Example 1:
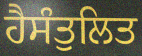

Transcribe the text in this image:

ਹੈਸੰਤੁਲਿਤ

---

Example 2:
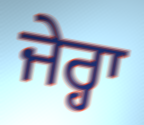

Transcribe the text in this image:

ਜੇਰ੍ਹਾ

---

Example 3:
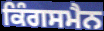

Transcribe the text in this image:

ਕਿੰਗਸਮੈਨ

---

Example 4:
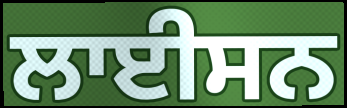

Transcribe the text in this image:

ਲਾਈਸਨ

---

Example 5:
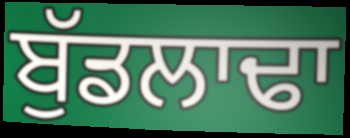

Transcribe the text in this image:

ਬੁੱਡਲਾਢਾ